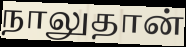
நாலுதான்